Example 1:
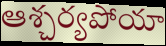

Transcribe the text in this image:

ఆశ్చర్యపోయా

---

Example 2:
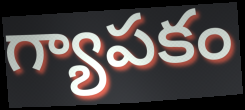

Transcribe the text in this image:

గ్యాపకం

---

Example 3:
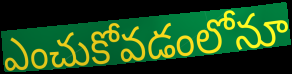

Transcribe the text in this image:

ఎంచుకోవడంలోనూ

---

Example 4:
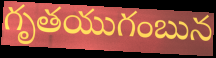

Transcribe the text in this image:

గృతయుగంబున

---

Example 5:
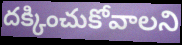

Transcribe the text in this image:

దక్కించుకోవాలని